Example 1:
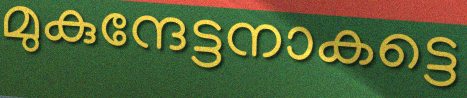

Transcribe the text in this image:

മുകുന്ദേട്ടനാകട്ടെ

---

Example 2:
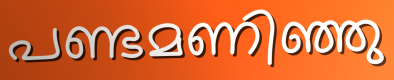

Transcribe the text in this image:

പണ്ടമണിഞ്ഞു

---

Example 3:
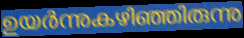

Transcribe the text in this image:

ഉയർന്നുകഴിഞ്ഞിരുന്നു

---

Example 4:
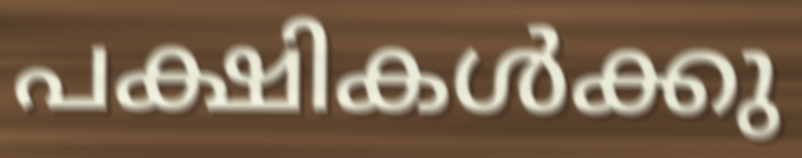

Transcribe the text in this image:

പക്ഷികൾക്കു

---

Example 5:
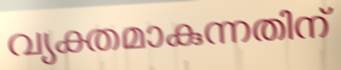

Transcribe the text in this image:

വ്യക്തമാകുന്നതിന്